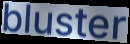
bluster